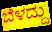
ಬೆಳದ್ದು